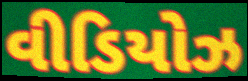
વીડિયોઝ